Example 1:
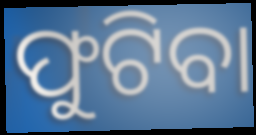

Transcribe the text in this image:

ଫୁଟିବା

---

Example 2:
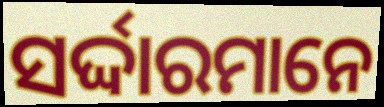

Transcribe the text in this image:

ସର୍ଦ୍ଦାରମାନେ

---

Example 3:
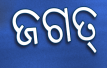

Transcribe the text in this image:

ଜଗତ୍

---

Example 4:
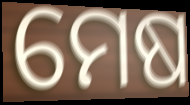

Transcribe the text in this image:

ମେଷ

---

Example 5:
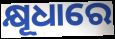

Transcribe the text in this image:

କ୍ଷୂଧାରେ